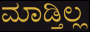
ಮಾಡ್ತಿಲ್ಲ